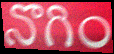
నొగిం